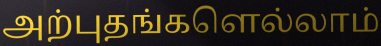
அற்புதங்களெல்லாம்